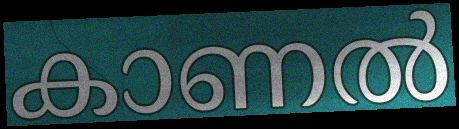
കാണൽ